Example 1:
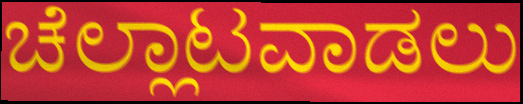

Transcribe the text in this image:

ಚೆಲ್ಲಾಟವಾಡಲು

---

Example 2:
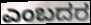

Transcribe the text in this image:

ಎಂಬದರ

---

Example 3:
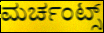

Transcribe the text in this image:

ಮರ್ಚಂಟ್ಸ್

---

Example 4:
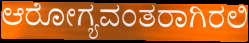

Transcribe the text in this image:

ಆರೋಗ್ಯವಂತರಾಗಿರಲಿ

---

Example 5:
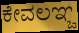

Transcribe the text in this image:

ಕೇವಲಞ್ಚ